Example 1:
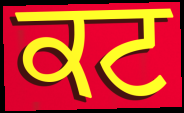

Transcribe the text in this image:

ਕਟ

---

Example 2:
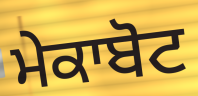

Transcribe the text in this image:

ਮੇਕਾਬੋਟ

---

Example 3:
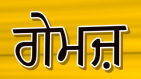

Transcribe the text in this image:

ਗੇਮਜ਼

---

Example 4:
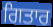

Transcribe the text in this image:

ਗਿਤਾਰ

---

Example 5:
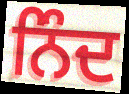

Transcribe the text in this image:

ਨਿੰਦ